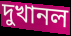
দুখানল